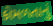
કોમળતાનું